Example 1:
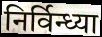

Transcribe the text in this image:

निर्विन्ध्या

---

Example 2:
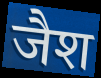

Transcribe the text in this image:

जैश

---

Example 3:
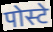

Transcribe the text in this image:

पोस्टे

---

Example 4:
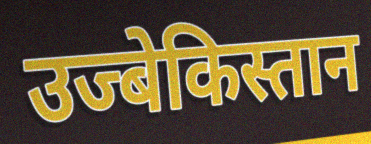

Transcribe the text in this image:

उज्बेकिस्तान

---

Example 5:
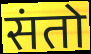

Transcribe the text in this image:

संतो